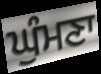
ਘੁੰਮਣਾ